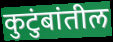
कुटुंबांतील